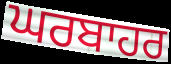
ਘਰਬਾਹਰ